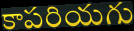
కాపరియగు